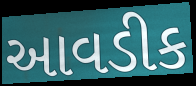
આવડીક